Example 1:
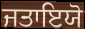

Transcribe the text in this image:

ਜਤਾਇਯੋ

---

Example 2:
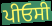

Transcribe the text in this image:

ਪੀਓਸੀ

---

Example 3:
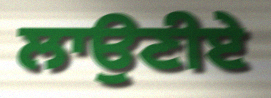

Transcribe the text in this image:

ਲਾਉਣੀਏ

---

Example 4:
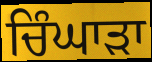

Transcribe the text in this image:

ਚਿੰਘਾੜਾ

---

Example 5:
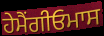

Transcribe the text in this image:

ਹੇਮੈਂਗੀਓਮਾਸ